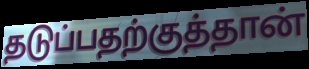
தடுப்பதற்குத்தான்